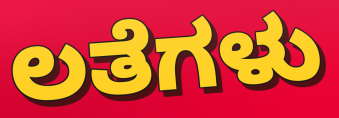
ಲತೆಗಳು